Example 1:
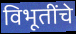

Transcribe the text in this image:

विभूतींचे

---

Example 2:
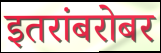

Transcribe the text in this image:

इतरांबरोबर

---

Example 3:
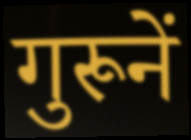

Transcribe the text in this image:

गुरूनें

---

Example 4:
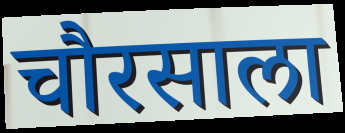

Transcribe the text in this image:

चौरसाला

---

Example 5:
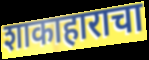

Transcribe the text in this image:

शाकाहाराचा